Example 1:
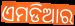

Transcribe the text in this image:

ଏମଡିଆର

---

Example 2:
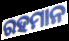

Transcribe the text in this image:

ରହମାନ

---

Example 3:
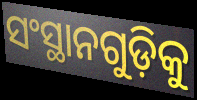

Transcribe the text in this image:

ସଂସ୍ଥାନଗୁଡ଼ିକୁ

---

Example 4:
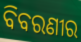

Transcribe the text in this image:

ବିବରଣୀର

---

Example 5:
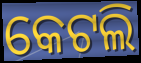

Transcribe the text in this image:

କେଟଲି